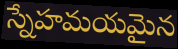
స్నేహమయమైన